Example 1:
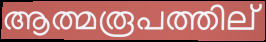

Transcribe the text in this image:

ആത്മരൂപത്തില്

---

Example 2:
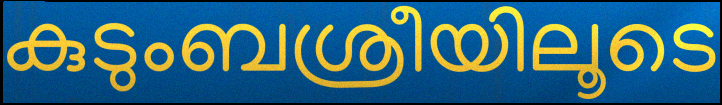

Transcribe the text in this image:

കുടുംബശ്രീയിലൂടെ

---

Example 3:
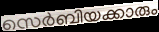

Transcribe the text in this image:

സെർബിയക്കാരും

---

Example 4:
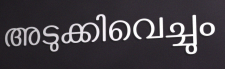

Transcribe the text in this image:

അടുക്കിവെച്ചും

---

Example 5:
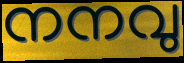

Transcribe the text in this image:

നനവു